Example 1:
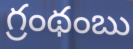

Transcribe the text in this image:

గ్రంథంబు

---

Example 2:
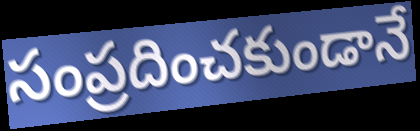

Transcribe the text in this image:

సంప్రదించకుండానే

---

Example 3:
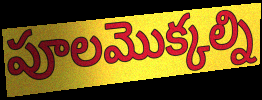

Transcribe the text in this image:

పూలమొక్కల్ని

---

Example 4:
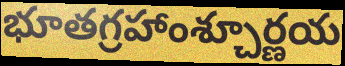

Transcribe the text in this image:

భూతగ్రహాంశ్చూర్ణయ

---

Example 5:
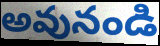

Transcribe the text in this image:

అవునండి